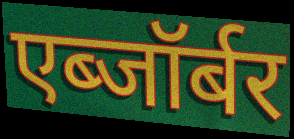
एब्जॉर्बर